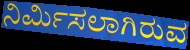
ನಿರ್ಮಿಸಲಾಗಿರುವ